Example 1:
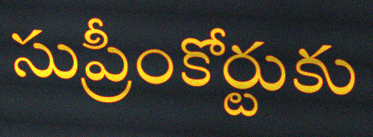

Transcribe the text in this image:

సుప్రీంకోర్టుకు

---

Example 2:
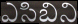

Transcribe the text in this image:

ఎసిబిని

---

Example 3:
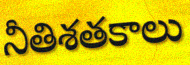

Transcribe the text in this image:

నీతిశతకాలు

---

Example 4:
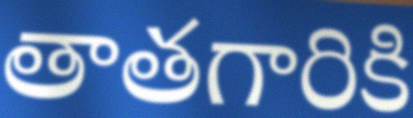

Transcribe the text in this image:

తాతగారికి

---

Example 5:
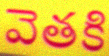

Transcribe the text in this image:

వెతకి